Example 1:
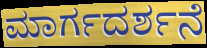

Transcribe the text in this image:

ಮಾರ್ಗದರ್ಶನೆ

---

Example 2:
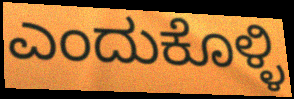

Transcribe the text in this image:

ಎಂದುಕೊಳ್ಳಿ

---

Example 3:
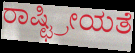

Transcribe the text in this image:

ರಾಷ್ಟ್ರೀಯತೆ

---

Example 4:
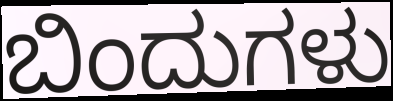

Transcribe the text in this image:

ಬಿಂದುಗಳು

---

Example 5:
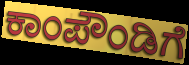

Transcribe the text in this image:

ಕಾಂಪೌಂಡಿಗೆ